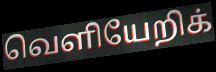
வெளியேறிக்